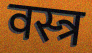
वस्‍त्र